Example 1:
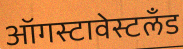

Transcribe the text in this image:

ऑगस्टावेस्टलँड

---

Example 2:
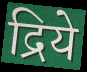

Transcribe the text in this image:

द्रिये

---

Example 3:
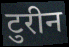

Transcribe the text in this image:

टुरीन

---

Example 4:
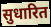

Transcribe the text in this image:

सुधारित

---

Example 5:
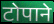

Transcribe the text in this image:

टोपाने